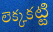
లెక్కకట్టి